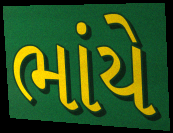
ભાંયે